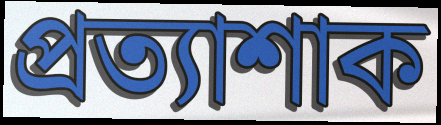
প্ৰত্যাশাক